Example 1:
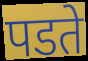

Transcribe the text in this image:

पडते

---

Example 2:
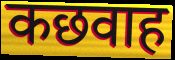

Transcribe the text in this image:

कछवाह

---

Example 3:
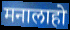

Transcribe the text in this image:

मनालाहो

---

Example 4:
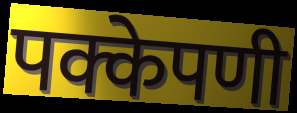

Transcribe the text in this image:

पक्केपणी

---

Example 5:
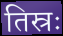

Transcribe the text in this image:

तिस्रः